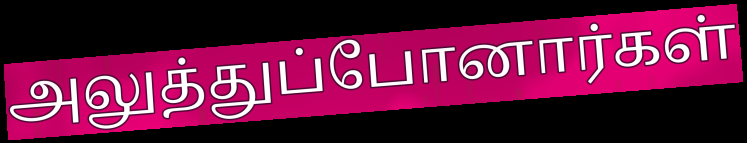
அலுத்துப்போனார்கள்